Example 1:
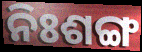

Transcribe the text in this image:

ନିଃଶଙ୍ଗ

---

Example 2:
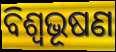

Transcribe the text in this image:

ବିଶ୍ୱଭୂଷଣ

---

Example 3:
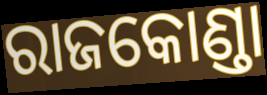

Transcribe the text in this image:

ରାଜକୋଣ୍ଡା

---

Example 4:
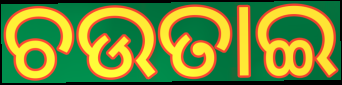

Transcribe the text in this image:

ଚଉତାଇ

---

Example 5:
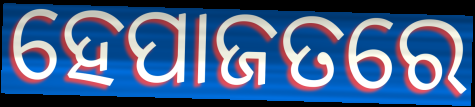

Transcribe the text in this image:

ହେପାଜତରେ